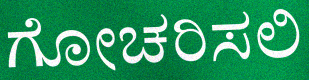
ಗೋಚರಿಸಲಿ